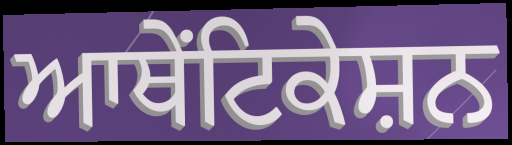
ਆਥੇਂਟਿਕੇਸ਼ਨ